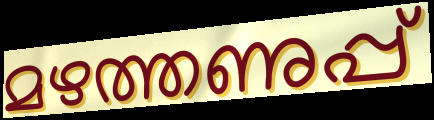
മഴത്തണുപ്പ്